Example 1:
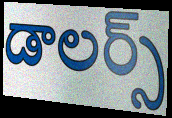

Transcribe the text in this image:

డాలర్స్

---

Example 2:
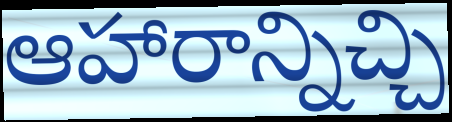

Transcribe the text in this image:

ఆహారాన్నిచ్చి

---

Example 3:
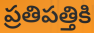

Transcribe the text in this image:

ప్రతిపత్తికి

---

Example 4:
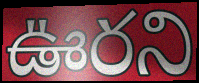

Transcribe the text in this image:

ఊరని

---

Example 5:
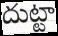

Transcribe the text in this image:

దుట్టా